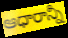
ఆధారాన్నీ